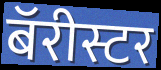
बॅरीस्टर